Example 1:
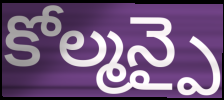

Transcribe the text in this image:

కోల్మన్పై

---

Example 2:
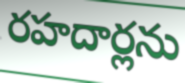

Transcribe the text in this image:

రహదార్లను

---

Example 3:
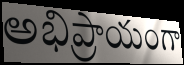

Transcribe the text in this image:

అభిప్రాయంగా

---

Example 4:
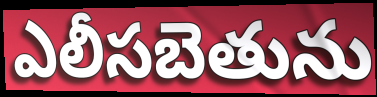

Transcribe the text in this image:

ఎలీసబెతును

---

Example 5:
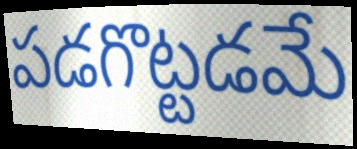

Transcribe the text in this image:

పడగొట్టడమే